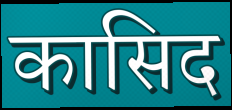
कासिद